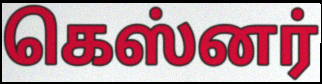
கெஸ்னர்